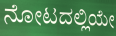
ನೋಟದಲ್ಲಿಯೇ